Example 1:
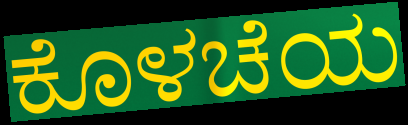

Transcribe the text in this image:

ಕೊಳಚೆಯ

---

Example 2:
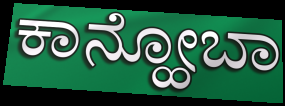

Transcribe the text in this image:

ಕಾನ್ಹೋಬಾ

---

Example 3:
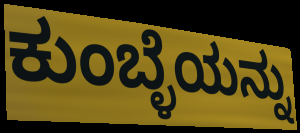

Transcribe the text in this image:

ಕುಂಬ್ಳೆಯನ್ನು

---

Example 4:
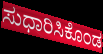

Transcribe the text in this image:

ಸುಧಾರಿಸಿಕೊಂಡ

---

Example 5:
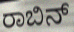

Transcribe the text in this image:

ರಾಬಿನ್